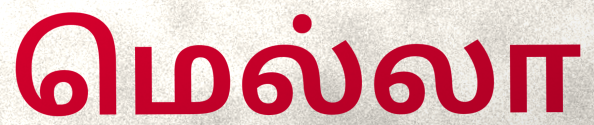
மெல்லா